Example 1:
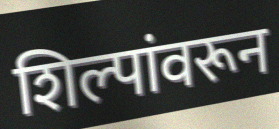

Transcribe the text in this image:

शिल्पांवरून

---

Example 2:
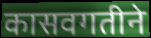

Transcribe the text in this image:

कासवगतीने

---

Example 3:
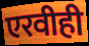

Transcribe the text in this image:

एरवीही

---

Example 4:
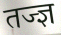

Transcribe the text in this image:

तज्‍ज्ञ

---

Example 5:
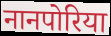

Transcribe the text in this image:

नानपोरिया